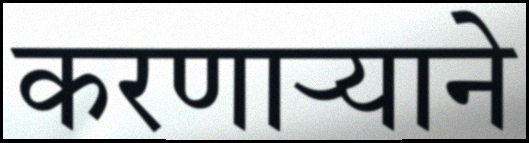
करणाऱ्याने